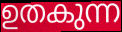
ഉതകുന്ന